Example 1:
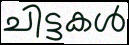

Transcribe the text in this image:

ചിട്ടകൾ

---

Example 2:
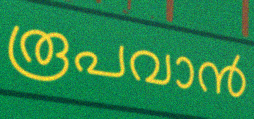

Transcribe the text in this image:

രൂപവാൻ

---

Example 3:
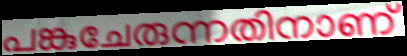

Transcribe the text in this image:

പങ്കുചേരുന്നതിനാണ്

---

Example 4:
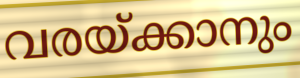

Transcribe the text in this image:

വരയ്ക്കാനും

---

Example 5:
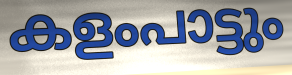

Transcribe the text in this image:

കളംപാട്ടും